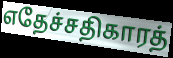
எதேச்சதிகாரத்